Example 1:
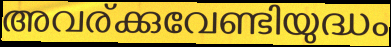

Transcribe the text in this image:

അവര്ക്കുവേണ്ടിയുദ്ധം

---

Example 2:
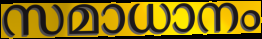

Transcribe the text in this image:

സമാധാനം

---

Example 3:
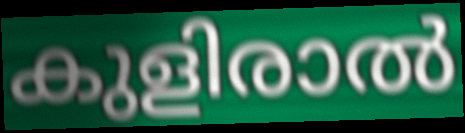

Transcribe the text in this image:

കുളിരാൽ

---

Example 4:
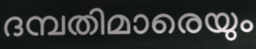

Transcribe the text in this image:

ദമ്പതിമാരെയും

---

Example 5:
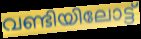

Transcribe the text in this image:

വണ്ടിയിലോട്ട്